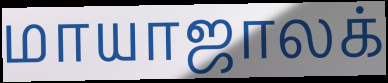
மாயாஜாலக்